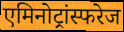
एमिनोट्रांस्फरेज